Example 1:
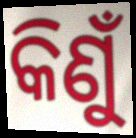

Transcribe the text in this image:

କିଣୁଁ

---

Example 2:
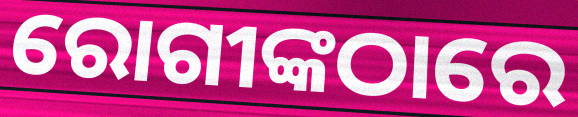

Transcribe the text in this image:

ରୋଗୀଙ୍କଠାରେ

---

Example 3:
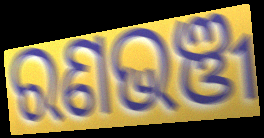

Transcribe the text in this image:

ରଣଭଞ୍ଜ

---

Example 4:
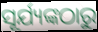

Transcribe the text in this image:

ସୂର୍ଯ୍ୟଙ୍କଠାରୁ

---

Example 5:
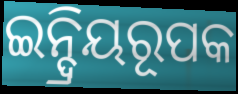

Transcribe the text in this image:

ଇନ୍ଦ୍ରିୟରୂପକ